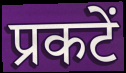
प्रकटें